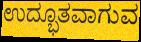
ಉದ್ಭೂತವಾಗುವ